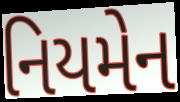
નિયમેન